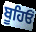
ਬੂਹਿਓਂ